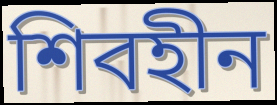
শিবহীন